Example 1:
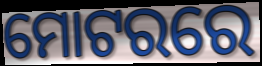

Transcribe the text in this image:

ମୋଟରରେ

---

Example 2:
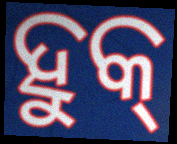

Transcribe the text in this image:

ହୁକ୍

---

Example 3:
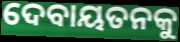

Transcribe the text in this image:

ଦେବାୟତନକୁ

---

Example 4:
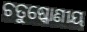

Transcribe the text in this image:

ଚତୁଷ୍କୋଣୀୟ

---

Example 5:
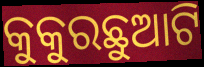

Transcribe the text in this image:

କୁକୁରଛୁଆଟି